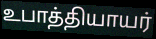
உபாத்தியாயர்